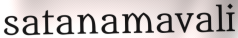
satanamavali